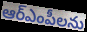
ఆర్ఎంపీలను